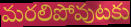
మరలిపోవుటకు